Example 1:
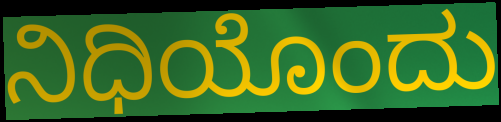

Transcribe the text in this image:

ನಿಧಿಯೊಂದು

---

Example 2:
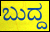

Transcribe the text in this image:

ಬುದ್ದ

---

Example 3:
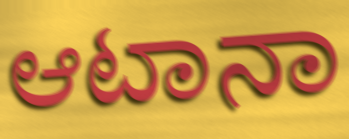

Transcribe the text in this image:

ಆಟಾನಾ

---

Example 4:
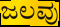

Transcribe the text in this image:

ಜಲವು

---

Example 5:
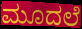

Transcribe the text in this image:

ಮೂದಲೆ